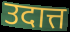
उदात्त